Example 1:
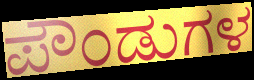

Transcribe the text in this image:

ಪೌಂಡುಗಳ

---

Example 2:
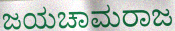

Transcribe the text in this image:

ಜಯಚಾಮರಾಜ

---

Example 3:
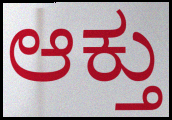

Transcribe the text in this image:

ಆಕ್ತು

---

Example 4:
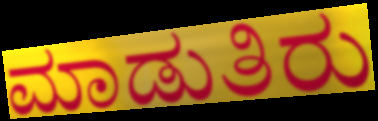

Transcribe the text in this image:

ಮಾಡುತಿರು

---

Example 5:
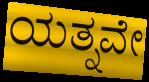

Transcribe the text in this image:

ಯತ್ನವೇ